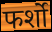
फर्शो